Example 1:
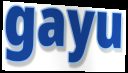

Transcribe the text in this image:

gayu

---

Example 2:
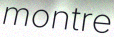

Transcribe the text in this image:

montre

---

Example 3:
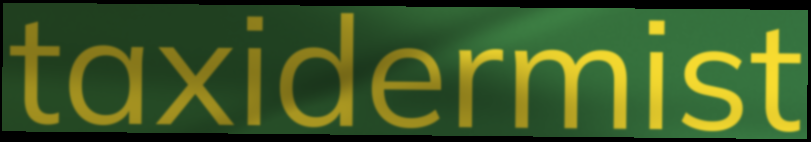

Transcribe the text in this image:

taxidermist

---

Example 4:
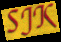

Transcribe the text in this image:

SJK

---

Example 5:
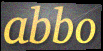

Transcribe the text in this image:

abbo